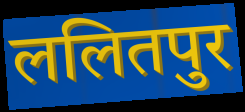
ललितपुर